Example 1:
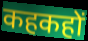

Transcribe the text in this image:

कहकहों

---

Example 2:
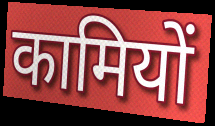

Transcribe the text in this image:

कामियों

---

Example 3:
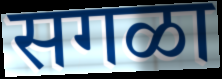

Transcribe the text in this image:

सगळा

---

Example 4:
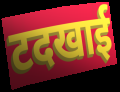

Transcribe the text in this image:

टदखाई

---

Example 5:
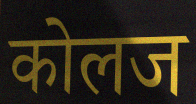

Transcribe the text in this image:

कोलज